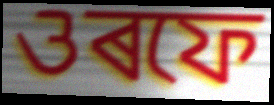
ওৰফে